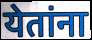
येतांना